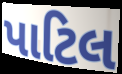
પાટિલ